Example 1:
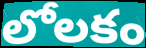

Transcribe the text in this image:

లోలకం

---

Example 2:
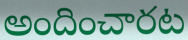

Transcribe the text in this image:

అందించారట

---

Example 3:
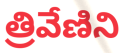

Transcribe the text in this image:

త్రివేణిని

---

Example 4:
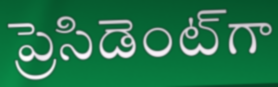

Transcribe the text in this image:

ప్రెసిడెంట్‌గా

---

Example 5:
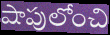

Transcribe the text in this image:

షాపులోంచి